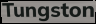
Tungston